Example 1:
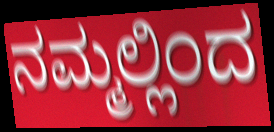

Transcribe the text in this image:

ನಮ್ಮಲ್ಲಿಂದ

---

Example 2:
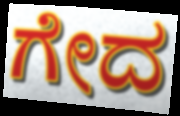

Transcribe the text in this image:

ಗೇದ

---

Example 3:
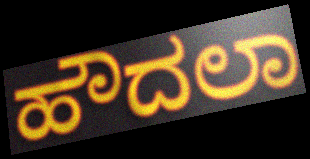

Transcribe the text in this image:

ಹೌದಲಾ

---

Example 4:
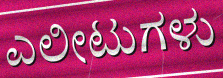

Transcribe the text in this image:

ಎಲೀಟುಗಳು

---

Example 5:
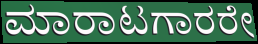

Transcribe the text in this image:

ಮಾರಾಟಗಾರರೇ